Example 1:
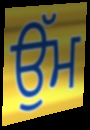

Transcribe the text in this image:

ਉੱਮ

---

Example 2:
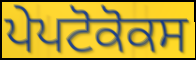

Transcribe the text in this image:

ਪੇਪਟੋਕੋਕਸ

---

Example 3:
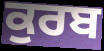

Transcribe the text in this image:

ਕੁਰਬ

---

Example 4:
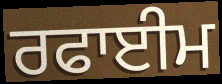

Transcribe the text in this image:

ਰਫਾਈਮ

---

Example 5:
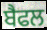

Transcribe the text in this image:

ਬੈਫਲ